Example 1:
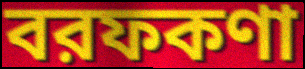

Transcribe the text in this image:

বরফকণা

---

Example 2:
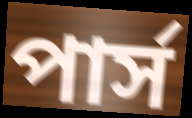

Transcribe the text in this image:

পার্স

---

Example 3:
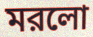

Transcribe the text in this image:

মরলো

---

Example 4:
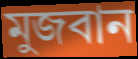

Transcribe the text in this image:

মুজবান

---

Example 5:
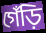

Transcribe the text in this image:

গেঁড়ি